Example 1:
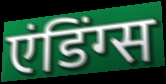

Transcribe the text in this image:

एंडिंग्स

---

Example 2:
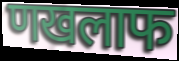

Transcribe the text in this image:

णखलाफ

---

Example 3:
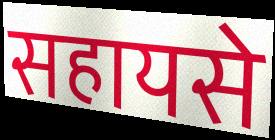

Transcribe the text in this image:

सहायसे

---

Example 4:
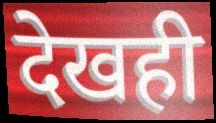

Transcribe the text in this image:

देखही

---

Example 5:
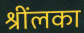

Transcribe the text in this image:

श्रींलका